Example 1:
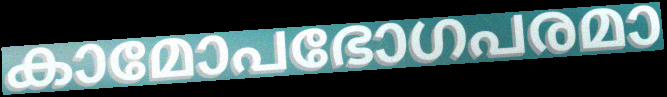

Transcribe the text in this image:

കാമോപഭോഗപരമാ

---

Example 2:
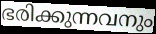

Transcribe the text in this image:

ഭരിക്കുന്നവനും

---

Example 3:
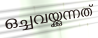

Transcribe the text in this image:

ഒച്ചവയ്ക്കുന്നത്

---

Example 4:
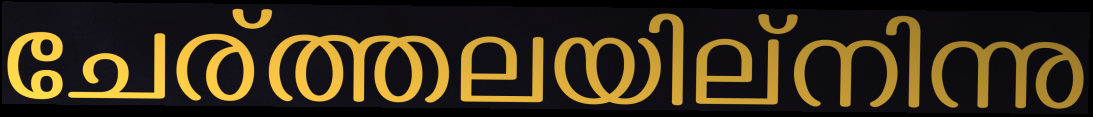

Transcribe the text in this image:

ചേര്ത്തലയില്നിന്നു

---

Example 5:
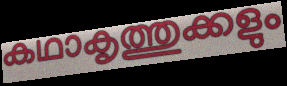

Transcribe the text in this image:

കഥാകൃത്തുക്കളും